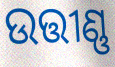
ଉତ୍ତୀଣ୍ଣ